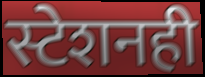
स्टेशनही